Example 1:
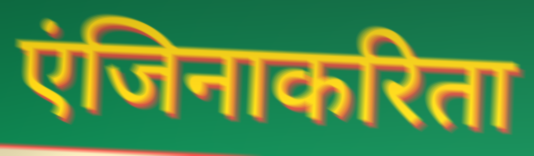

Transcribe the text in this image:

एंजिनाकरिता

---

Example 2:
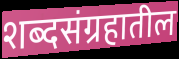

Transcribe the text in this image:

शब्दसंग्रहातील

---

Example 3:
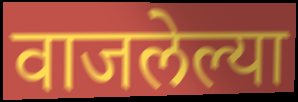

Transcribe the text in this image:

वाजलेल्या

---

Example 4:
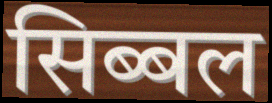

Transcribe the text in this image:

सिब्बल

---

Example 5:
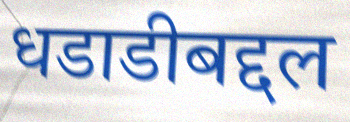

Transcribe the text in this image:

धडाडीबद्दल